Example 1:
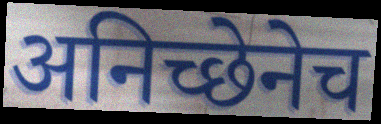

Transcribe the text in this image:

अनिच्छेनेच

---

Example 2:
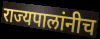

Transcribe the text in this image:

राज्यपालांनीच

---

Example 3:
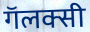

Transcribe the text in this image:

गॅलक्सी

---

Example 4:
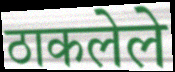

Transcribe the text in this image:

ठाकलेले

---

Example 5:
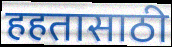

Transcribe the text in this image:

हहतासाठी